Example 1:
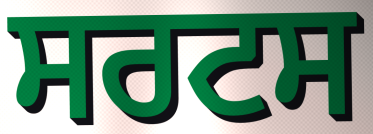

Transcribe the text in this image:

ਸਰਟਸ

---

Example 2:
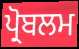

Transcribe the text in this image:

ਪ੍ਰੋਬਲਮ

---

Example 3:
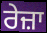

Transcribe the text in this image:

ਰੇਜ਼ਾ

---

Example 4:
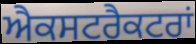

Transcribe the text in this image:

ਐਕਸਟਰੈਕਟਰਾਂ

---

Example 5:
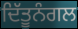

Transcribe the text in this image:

ਦਿੱਤੂਨੰਗਲ